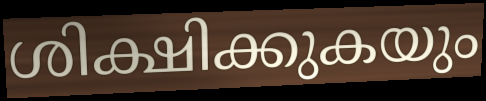
ശിക്ഷിക്കുകയും